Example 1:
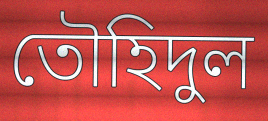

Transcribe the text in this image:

তৌহিদুল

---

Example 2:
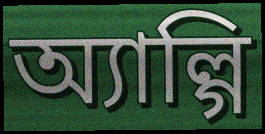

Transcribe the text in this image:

অ্যাল্গি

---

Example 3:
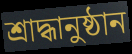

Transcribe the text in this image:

শ্রাদ্ধানুষ্ঠান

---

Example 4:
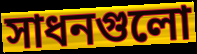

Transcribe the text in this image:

সাধনগুলো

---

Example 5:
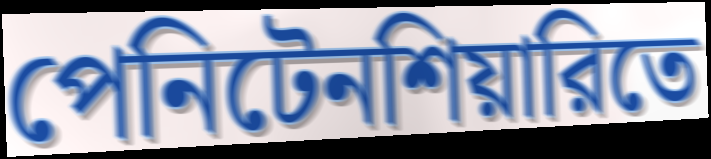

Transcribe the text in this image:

পেনিটেনশিয়ারিতে